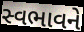
સ્વભાવને